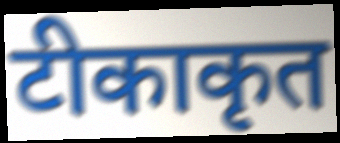
टीकाकृत